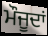
ਮੌਜੂਦਾਂ